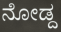
ನೋಡ್ದ